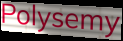
Polysemy